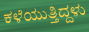
ಕಳೆಯುತ್ತಿದ್ದಳು